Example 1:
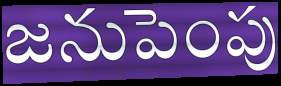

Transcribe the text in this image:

జనుపెంపు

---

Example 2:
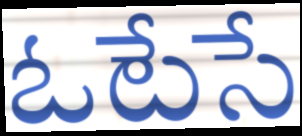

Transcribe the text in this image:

ఓటేసే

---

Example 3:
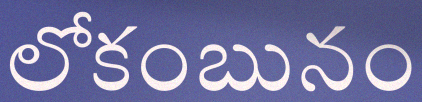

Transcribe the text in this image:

లోకంబునం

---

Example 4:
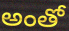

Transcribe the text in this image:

అంతో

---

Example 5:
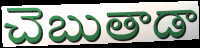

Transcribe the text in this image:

చెబుతాడా